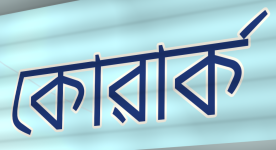
কোৱাৰ্ক